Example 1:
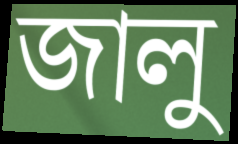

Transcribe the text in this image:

জালু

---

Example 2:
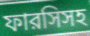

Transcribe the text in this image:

ফারসিসহ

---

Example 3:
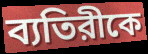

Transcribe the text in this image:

ব্যতিরীকে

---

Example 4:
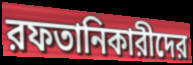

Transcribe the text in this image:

রফতানিকারীদের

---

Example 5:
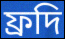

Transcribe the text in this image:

ফ্রদি